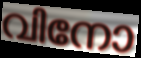
വിനോ